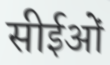
सीईओं